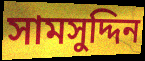
সামসুদ্দিন